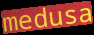
medusa